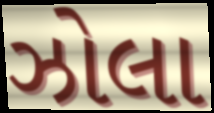
ઝોલા